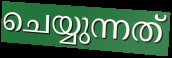
ചെയ്യുന്നത്